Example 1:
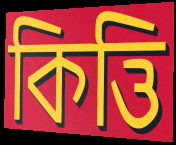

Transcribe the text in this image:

কিত্তি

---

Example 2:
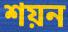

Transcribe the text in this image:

শয়ন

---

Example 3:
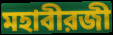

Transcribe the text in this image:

মহাবীরজী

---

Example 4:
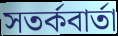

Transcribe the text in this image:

সতর্কবার্তা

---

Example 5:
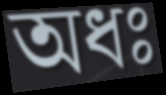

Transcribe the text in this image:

অধঃ